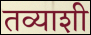
तव्याशी